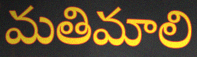
మతిమాలి